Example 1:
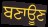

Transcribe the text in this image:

ਬਣਾਊਣ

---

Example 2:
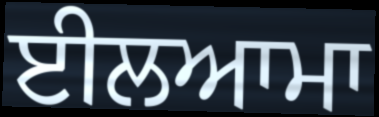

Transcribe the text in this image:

ਈਲਆਮਾ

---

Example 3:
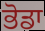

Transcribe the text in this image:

ਭੋਡਾ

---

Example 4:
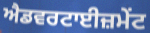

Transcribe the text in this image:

ਐਡਵਰਟਾਈਜ਼ਮੇਂਟ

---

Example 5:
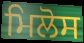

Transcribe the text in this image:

ਮਿਲੋਸ